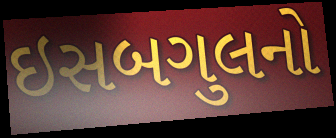
ઇસબગુલનો